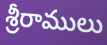
శ్రీరాములు